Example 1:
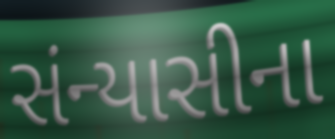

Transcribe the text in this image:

સંન્યાસીના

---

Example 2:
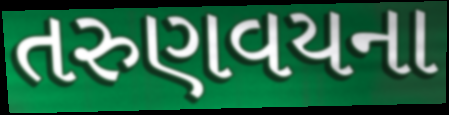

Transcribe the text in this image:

તરુણવયના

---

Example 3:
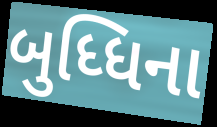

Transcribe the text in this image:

બુધ્ધિના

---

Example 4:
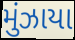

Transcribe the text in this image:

મુંઝાયા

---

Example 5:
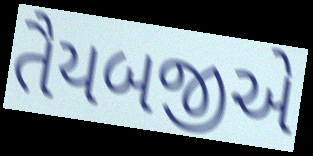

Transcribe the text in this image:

તૈયબજીએ